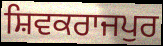
ਸ਼ਿਵਕਰਾਜਪੁਰ